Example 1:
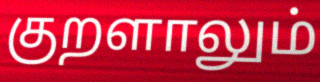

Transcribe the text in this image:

குறளாலும்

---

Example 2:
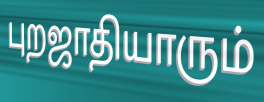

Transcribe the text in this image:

புறஜாதியாரும்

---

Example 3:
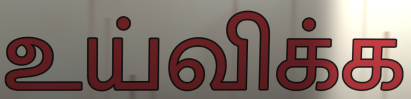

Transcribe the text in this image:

உய்விக்க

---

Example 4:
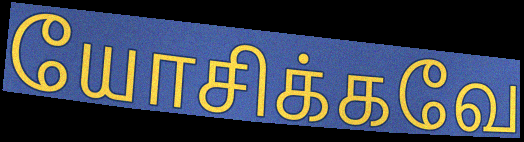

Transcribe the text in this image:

யோசிக்கவே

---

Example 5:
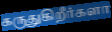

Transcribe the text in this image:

கருதுகிறீர்களா